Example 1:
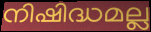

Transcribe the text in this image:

നിഷിദ്ധമല്ല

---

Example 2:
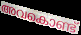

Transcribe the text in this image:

അവകൊണ്ട്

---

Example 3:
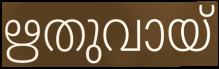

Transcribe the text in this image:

ഋതുവായ്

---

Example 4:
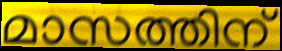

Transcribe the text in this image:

മാസത്തിന്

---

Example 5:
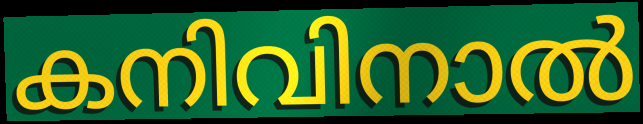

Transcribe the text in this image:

കനിവിനാൽ